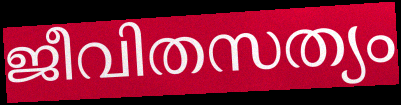
ജീവിതസത്യം